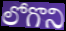
లోగొని